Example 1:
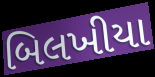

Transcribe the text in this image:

બિલખીયા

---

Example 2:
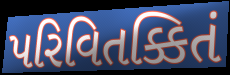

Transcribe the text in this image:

પરિવિતક્કિતં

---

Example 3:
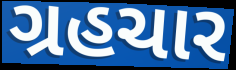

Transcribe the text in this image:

ગ્રહચાર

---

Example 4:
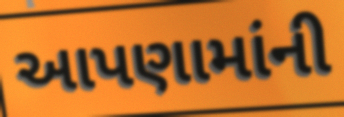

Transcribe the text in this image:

આપણામાંની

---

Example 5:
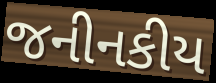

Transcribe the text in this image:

જનીનકીય